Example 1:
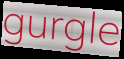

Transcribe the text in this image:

gurgle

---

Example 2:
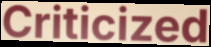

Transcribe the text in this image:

Criticized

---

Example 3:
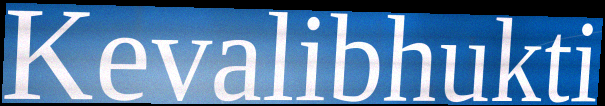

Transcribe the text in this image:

Kevalibhukti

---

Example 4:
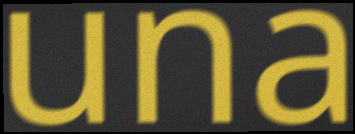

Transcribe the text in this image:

una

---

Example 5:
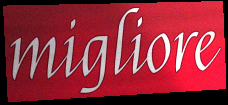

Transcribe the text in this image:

migliore